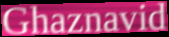
Ghaznavid